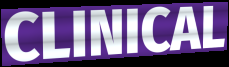
CLINICAL